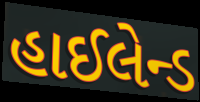
હાઈલેન્ડ